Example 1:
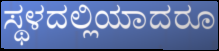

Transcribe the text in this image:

ಸ್ಥಳದಲ್ಲಿಯಾದರೂ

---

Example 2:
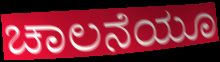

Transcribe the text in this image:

ಚಾಲನೆಯೂ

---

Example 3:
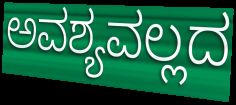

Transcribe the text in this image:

ಅವಶ್ಯವಲ್ಲದ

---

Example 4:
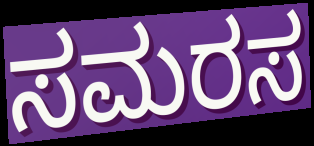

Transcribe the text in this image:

ಸಮರಸ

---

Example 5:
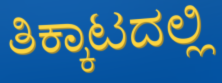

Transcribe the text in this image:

ತಿಕ್ಕಾಟದಲ್ಲಿ